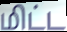
மிட்ட